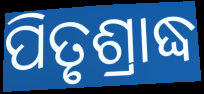
ପିତୃଶ୍ରାଦ୍ଧ